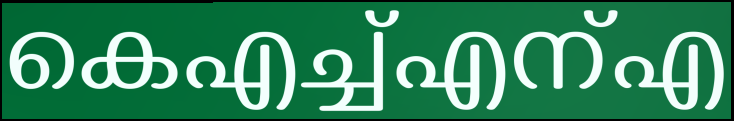
കെഎച്ച്എന്എ